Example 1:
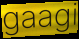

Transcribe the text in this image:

gaagi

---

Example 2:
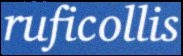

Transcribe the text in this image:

ruficollis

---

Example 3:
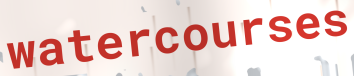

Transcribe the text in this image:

watercourses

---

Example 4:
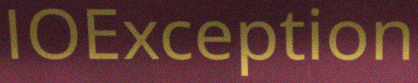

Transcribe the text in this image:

IOException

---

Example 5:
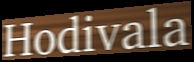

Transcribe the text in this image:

Hodivala